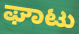
ಘಾಟು